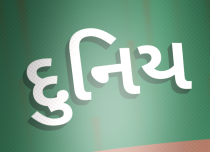
દુનિય